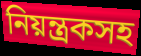
নিয়ন্ত্রকসহ